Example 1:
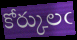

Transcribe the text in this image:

కోర్కులఁ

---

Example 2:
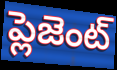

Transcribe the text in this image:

ప్లెజెంట్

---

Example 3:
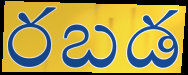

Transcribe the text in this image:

రబడ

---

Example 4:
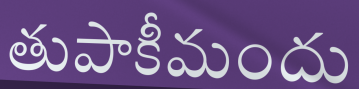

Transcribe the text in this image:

తుపాకీమందు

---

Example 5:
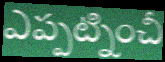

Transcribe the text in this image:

ఎప్పట్నించీ